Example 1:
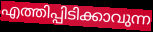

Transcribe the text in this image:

എത്തിപ്പിടിക്കാവുന്ന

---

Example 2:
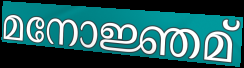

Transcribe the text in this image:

മനോജ്ഞമ്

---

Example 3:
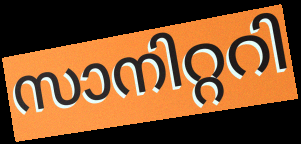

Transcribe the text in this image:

സാനിറ്ററി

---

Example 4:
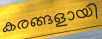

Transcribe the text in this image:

കരങ്ങളായി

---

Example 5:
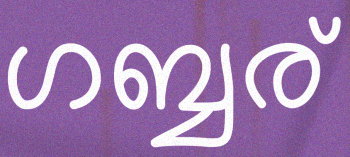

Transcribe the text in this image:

ഗബ്ബര്